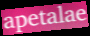
apetalae